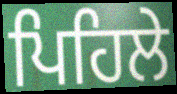
ਪਿਹਿਲੇ